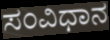
ಸಂವಿಧಾನ